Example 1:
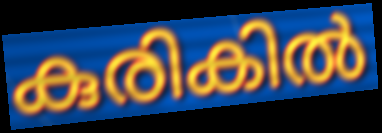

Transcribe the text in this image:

കുരികിൽ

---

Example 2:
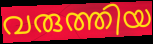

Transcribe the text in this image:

വരുത്തിയ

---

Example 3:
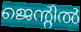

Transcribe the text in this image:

ജെന്റിൽ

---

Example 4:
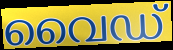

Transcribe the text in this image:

വൈഡ്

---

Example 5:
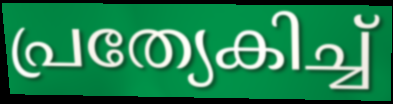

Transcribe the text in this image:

പ്രത്യേകിച്ച്